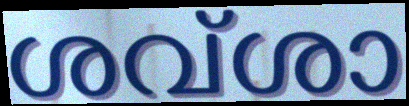
ശവ്ശാ